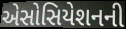
એસોસિયેશનની